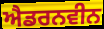
ਐਡਰਨਵੀਨ